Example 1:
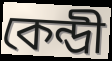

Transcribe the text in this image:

কেন্দ্রী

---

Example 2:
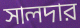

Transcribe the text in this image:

সালদার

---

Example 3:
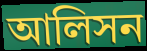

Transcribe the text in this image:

আলিসন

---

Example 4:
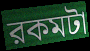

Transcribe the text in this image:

রকমটা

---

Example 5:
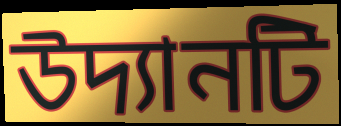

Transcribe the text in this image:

উদ্যানটি